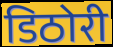
डिठोरी